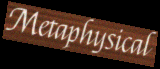
Metaphysical